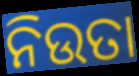
ନିଉତା